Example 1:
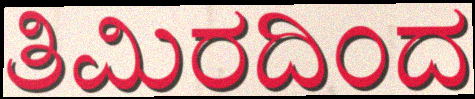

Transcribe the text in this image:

ತಿಮಿರದಿಂದ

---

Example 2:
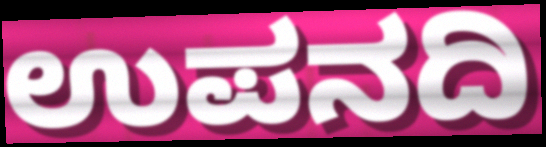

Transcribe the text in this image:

ಉಪನದಿ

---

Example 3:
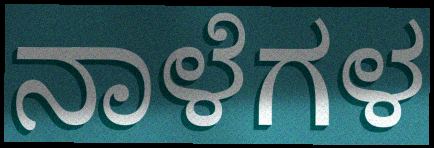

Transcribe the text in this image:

ನಾಳೆಗಳ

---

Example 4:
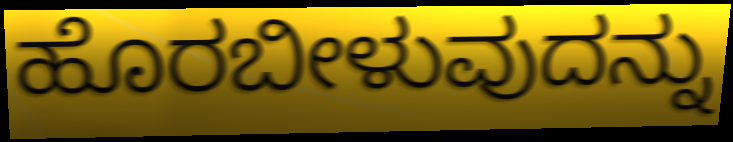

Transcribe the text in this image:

ಹೊರಬೀಳುವುದನ್ನು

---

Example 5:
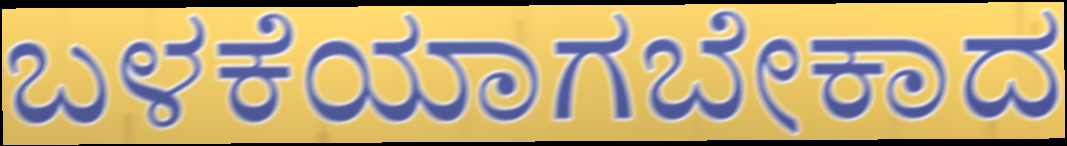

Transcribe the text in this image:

ಬಳಕೆಯಾಗಬೇಕಾದ